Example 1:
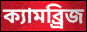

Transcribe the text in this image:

ক্যামব্র্রিজ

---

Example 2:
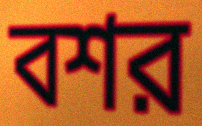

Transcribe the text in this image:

বশর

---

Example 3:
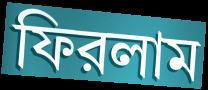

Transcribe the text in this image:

ফিরলাম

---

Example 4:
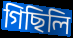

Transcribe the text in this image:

গিছিলি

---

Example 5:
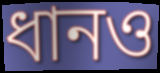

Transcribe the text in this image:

ধানও